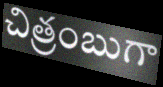
చిత్రంబుగా